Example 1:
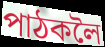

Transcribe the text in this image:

পাঠকলৈ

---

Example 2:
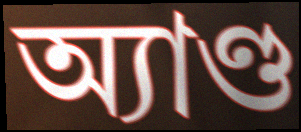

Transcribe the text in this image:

অ্যাণ্ড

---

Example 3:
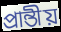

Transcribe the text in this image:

প্ৰান্তীয়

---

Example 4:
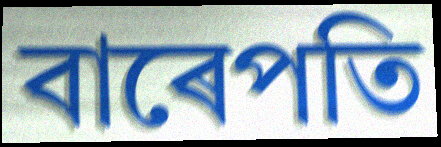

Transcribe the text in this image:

বাৰেপতি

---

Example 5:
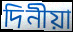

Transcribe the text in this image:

দিনীয়া